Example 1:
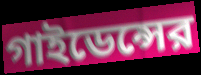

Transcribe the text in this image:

গাইডেন্সের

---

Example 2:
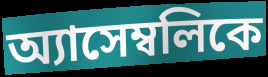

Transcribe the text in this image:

অ্যাসেম্বলিকে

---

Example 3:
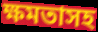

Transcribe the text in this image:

ক্ষমতাসহ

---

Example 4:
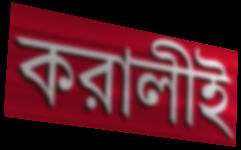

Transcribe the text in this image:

করালীই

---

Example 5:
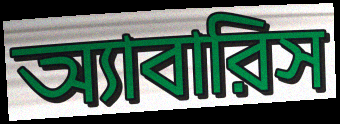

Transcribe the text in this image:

অ্যাবারিস